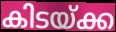
കിടയ്ക്ക